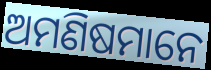
ଅମଣିଷମାନେ